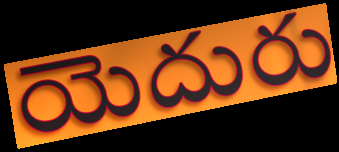
యెదురు